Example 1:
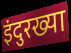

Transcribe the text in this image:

इंदुरख्या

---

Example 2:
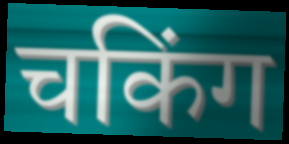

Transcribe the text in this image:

चकिंग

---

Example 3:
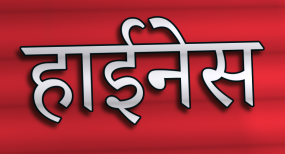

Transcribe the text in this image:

हाईनेस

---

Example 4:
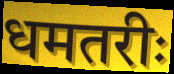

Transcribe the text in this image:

धमतरीः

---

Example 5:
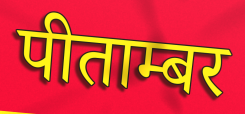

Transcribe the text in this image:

पीताम्बर